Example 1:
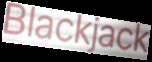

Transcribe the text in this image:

Blackjack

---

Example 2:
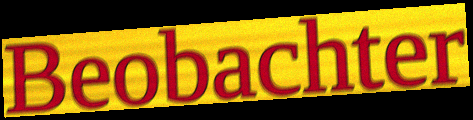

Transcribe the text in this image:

Beobachter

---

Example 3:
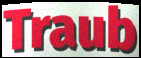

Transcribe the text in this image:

Traub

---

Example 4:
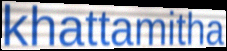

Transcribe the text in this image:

khattamitha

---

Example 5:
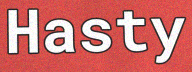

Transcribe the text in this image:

Hasty